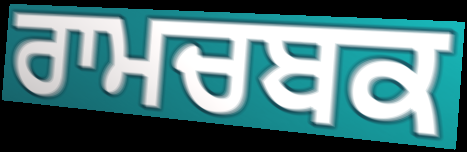
ਰਾਮਚਬਕ